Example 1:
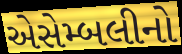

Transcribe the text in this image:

એસેમ્બલીનો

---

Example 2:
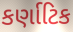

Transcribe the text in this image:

કર્ણાટિક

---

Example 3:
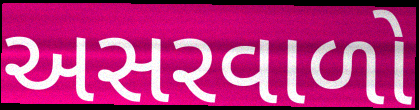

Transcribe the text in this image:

અસરવાળો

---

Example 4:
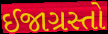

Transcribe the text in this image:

ઈજાગ્રસ્તો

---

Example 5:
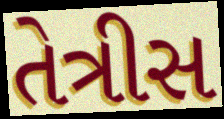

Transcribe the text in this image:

તેત્રીસ